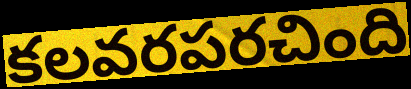
కలవరపరచింది